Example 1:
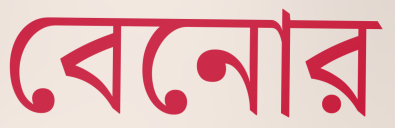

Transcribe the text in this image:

বেনোর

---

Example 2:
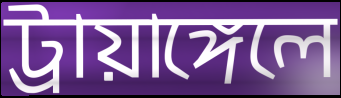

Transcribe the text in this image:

ট্রায়াঙ্গেলে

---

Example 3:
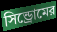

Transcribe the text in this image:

সিন্ড্রোমের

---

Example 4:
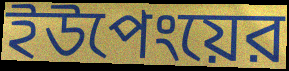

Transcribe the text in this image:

ইউপেংয়ের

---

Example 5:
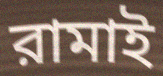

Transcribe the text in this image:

রামাই